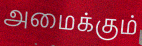
அமைக்கும்